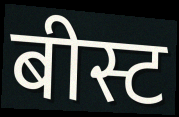
बीस्ट